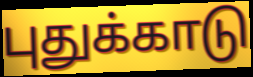
புதுக்காடு